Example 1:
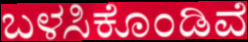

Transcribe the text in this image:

ಬಳಸಿಕೊಂಡಿವೆ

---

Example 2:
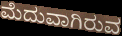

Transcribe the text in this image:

ಮೆದುವಾಗಿರುವ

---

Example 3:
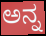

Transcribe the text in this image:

ಅನ್ನ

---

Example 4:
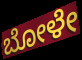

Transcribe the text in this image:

ಬೋಳೇ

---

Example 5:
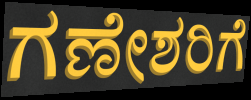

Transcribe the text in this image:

ಗಣೇಶರಿಗೆ